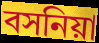
বসনিয়া